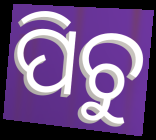
ପିଚୁ